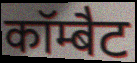
कॉम्बैट